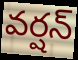
వర్షన్